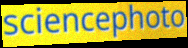
sciencephoto